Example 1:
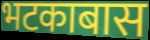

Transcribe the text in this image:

भटकाबास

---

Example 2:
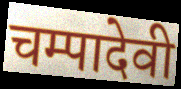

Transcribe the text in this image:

चम्पादेवी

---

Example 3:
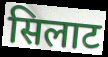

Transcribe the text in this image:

सिलाट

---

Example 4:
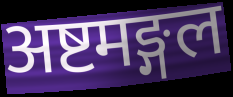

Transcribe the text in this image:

अष्टमङ्गल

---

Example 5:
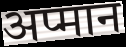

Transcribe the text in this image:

अप्मान